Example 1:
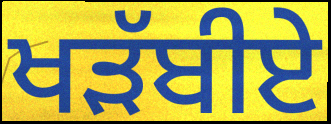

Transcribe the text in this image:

ਖੜੱਬੀਏ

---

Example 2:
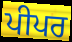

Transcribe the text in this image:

ਪੀਪਰ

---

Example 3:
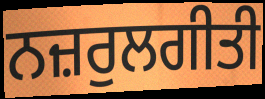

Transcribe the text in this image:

ਨਜ਼ਰੁਲਗੀਤੀ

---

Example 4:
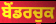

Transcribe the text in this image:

ਬੋਂਡਰਚੁਕ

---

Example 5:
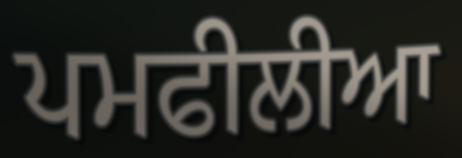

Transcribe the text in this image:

ਪਮਫੀਲੀਆ